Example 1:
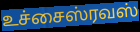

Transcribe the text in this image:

உச்சைஸ்ரவஸ்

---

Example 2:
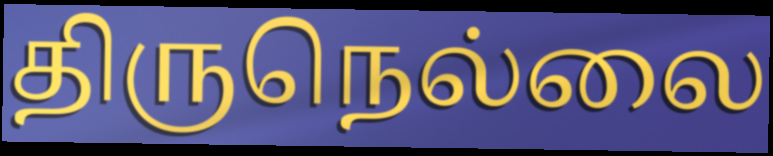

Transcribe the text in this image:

திருநெல்லை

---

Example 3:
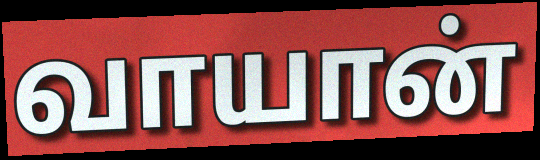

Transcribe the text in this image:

வாயான்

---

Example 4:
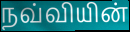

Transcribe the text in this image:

நவ்வியின்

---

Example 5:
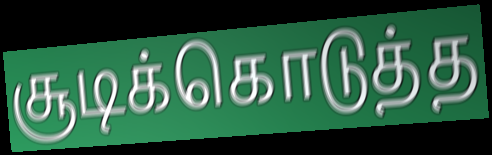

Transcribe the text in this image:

சூடிக்கொடுத்த